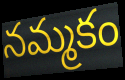
నమ్మకం